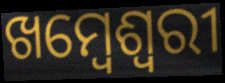
ଖମ୍ବେଶ୍ଵରୀ